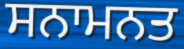
ਸਨਾਮਨਤ